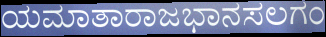
ಯಮಾತಾರಾಜಭಾನಸಲಗಂ